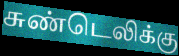
சுண்டெலிக்கு